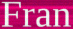
Fran